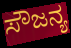
ಸೌಜನ್ಯ